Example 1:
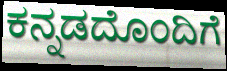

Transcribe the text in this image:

ಕನ್ನಡದೊಂದಿಗೆ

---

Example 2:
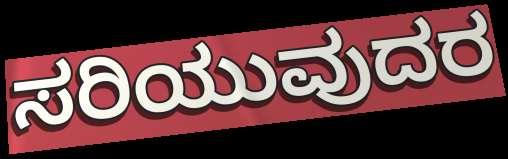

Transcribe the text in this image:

ಸರಿಯುವುದರ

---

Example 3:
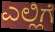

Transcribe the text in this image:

ಎಲ್ಲಿಗೆ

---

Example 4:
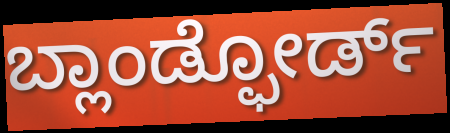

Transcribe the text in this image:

ಬ್ಲಾಂಡ್ಫೋರ್ಡ್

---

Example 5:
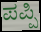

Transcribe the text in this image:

ಪಪ್ಪಿ